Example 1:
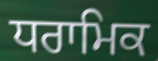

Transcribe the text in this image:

ਧਰਾਮਿਕ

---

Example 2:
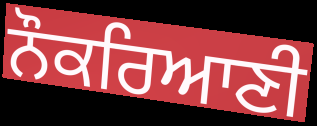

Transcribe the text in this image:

ਨੌਕਰਿਆਣੀ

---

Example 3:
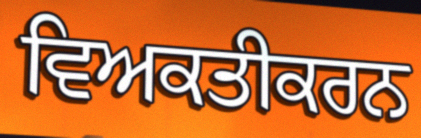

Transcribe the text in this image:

ਵਿਅਕਤੀਕਰਨ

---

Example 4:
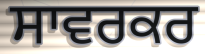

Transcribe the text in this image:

ਸਾਵਰਕਰ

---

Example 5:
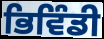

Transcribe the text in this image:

ਭਿਵਿੰਡੀ